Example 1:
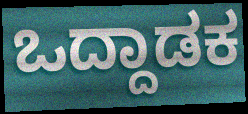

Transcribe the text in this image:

ಒದ್ದಾಡಕ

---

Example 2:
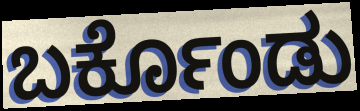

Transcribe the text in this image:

ಬರ್ಕೊಂಡು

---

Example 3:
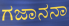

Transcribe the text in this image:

ಗಜಾನನಾ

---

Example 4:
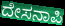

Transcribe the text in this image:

ದೇಸನಾಪಿ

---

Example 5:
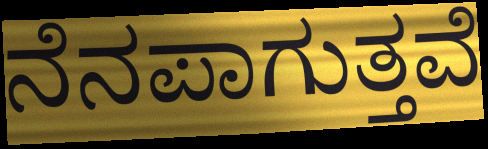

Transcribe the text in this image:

ನೆನಪಾಗುತ್ತವೆ